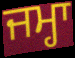
ਜਮ੍ਹਾ